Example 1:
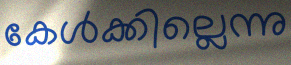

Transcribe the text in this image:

കേൾക്കില്ലെന്നു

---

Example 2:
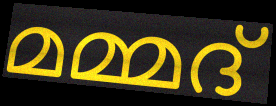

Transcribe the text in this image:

മമ്മദ്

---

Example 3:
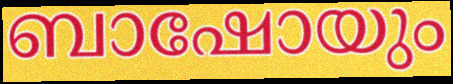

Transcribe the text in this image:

ബാഷോയും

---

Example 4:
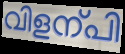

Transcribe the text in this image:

വിളന്പി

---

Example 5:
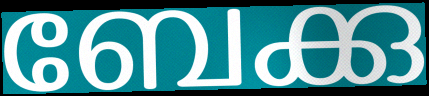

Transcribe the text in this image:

ബേക്കു